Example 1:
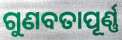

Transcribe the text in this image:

ଗୁଣବତାପୂର୍ଣ୍ଣ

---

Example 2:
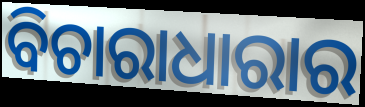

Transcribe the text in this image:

ବିଚାରାଧାରାର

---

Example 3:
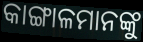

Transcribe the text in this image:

କାଙ୍ଗାଳମାନଙ୍କୁ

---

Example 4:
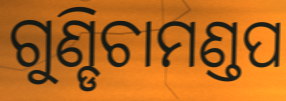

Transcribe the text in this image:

ଗୁଣ୍ଡିଚାମଣ୍ଡପ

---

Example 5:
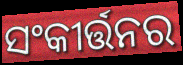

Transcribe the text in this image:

ସଂକୀର୍ତ୍ତନର